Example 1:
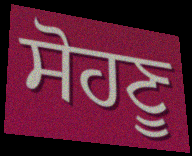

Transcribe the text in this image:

ਸੋਹਣੂ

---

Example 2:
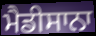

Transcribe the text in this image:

ਮੈਡੀਸਾਨਾ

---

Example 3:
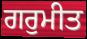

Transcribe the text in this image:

ਗਰੁਮੀਤ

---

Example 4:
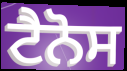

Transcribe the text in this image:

ਟੈਨੋਸ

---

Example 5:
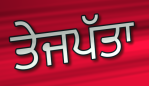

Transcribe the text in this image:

ਤੇਜਪੱਤਾ